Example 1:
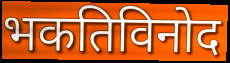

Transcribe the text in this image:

भकतिविनोद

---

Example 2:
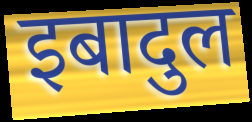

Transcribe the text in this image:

इबादुल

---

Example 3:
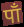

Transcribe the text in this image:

पाँ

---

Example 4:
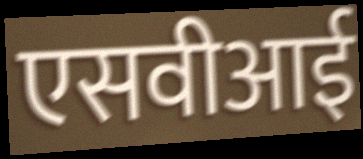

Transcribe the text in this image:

एसवीआई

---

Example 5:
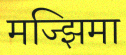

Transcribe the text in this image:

मज्झिमा